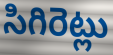
సిగిరెట్లు